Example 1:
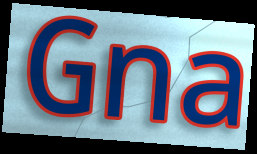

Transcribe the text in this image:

Gna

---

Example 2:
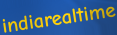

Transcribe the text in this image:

indiarealtime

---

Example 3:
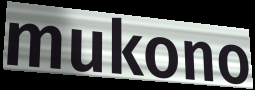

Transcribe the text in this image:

mukono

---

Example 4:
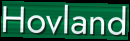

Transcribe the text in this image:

Hovland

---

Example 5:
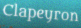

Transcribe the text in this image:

Clapeyron